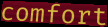
comfort